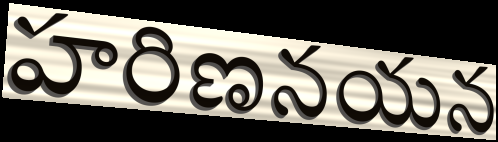
హరిణనయన